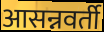
आसन्नवर्ती